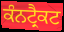
ਕੰਨਟ੍ਰੈਕਟ